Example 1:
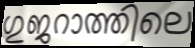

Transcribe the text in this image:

ഗുജറാത്തിലെ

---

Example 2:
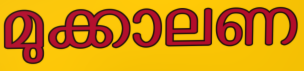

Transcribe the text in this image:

മുക്കാലണ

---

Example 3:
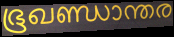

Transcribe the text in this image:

ഭൂഖണ്ഡാന്തര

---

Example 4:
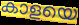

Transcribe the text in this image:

കാളയെ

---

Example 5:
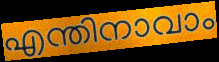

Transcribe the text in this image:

എന്തിനാവാം